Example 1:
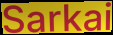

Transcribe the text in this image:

Sarkai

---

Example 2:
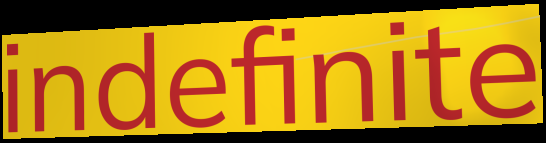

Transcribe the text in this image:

indefinite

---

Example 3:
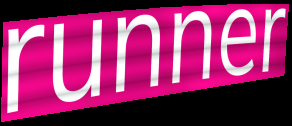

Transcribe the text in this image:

runner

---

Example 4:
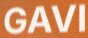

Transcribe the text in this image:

GAVI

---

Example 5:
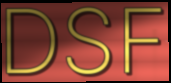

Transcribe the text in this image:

DSF